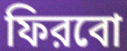
ফিরবো